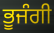
ਭੂਜੰਗੀ